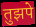
तुझपे